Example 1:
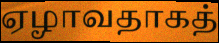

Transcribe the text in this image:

ஏழாவதாகத்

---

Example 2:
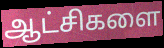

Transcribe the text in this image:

ஆட்சிகளை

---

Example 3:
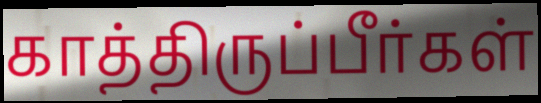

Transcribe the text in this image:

காத்திருப்பீர்கள்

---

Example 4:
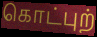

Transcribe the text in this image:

கொட்புற்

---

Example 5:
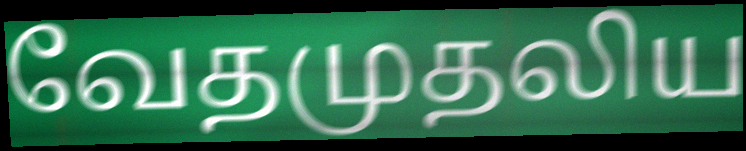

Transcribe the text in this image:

வேதமுதலிய